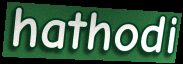
hathodi